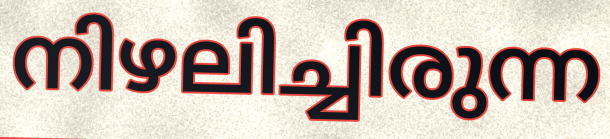
നിഴലിച്ചിരുന്ന